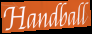
Handball